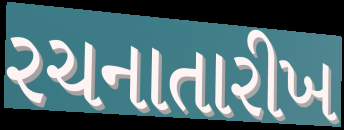
રચનાતારીખ